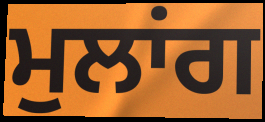
ਮੁਲਾਂਗ